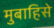
मुबाहिसे